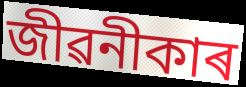
জীৱনীকাৰ